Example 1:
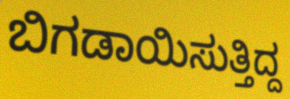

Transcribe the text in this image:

ಬಿಗಡಾಯಿಸುತ್ತಿದ್ದ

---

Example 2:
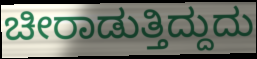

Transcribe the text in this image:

ಚೀರಾಡುತ್ತಿದ್ದುದು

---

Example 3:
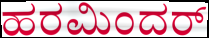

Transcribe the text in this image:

ಹರಮಿಂದರ್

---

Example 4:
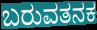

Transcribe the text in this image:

ಬರುವತನಕ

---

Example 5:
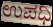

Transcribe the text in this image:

ಉಪಧಿ